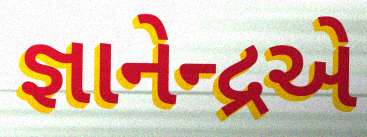
જ્ઞાનેન્દ્રએ